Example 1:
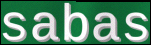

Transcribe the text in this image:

sabas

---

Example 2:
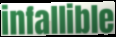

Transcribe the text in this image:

infallible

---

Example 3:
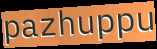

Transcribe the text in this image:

pazhuppu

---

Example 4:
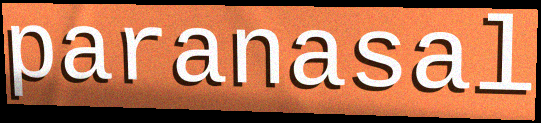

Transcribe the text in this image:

paranasal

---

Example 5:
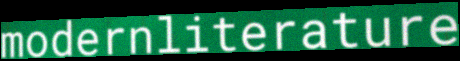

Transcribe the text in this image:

modernliterature